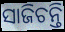
ସାଜିଚନ୍ତି